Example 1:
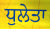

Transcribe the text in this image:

ਧੁਲੇਤਾ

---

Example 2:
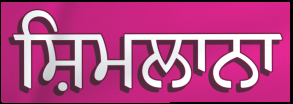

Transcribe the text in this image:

ਸ਼ਿਮਲਾਨਾ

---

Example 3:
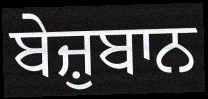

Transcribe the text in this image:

ਬੇਜ਼ੁਬਾਨ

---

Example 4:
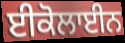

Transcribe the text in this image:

ਈਕੋਲਾਈਨ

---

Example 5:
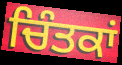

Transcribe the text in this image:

ਚਿੰਤਕਾਂ